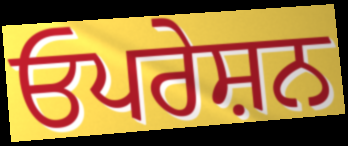
ਓਪਰੇਸ਼ਨ